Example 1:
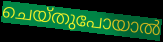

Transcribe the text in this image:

ചെയ്തുപോയാൽ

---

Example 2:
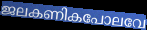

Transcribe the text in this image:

ജലകണികപോലവേ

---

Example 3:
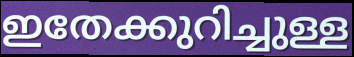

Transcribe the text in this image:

ഇതേക്കുറിച്ചുള്ള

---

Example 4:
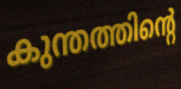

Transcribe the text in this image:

കുന്തത്തിന്റെ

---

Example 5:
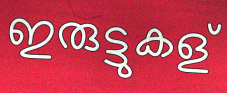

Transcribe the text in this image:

ഇരുട്ടുകള്